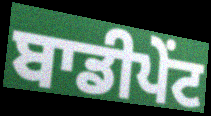
ਬਾਡੀਪੇਂਟ